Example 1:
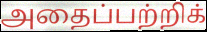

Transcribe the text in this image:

அதைப்பற்றிக்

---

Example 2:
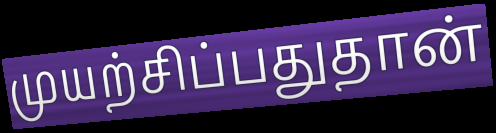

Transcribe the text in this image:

முயற்சிப்பதுதான்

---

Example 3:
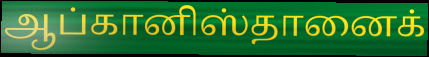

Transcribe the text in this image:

ஆப்கானிஸ்தானைக்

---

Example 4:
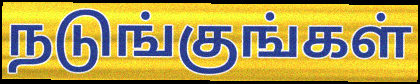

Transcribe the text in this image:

நடுங்குங்கள்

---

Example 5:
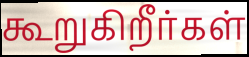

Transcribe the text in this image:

கூறுகிறீர்கள்